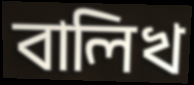
বালিখ